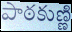
పాఠకుణ్ణి